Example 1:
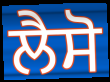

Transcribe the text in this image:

ਲੈਸੋ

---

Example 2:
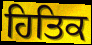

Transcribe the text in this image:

ਹਿਤਿਕ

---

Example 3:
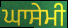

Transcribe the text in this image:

ਘਾਸੇਮੀ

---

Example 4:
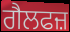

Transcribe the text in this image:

ਗੈਲਫਜ਼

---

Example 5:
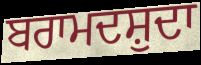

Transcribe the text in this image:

ਬਰਾਮਦਸ਼ੁਦਾ